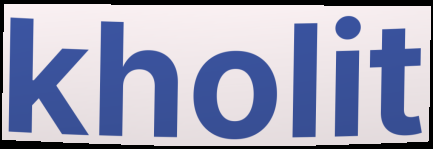
kholit